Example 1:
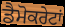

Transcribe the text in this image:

ਡੈਮੋਕਰੇਟਾਂ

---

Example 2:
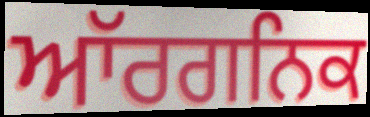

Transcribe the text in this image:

ਆੱਰਗਨਿਕ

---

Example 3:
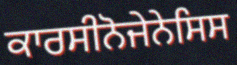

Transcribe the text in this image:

ਕਾਰਸੀਨੋਜੇਨੇਸਿਸ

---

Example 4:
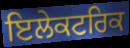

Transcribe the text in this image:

ਇਲੇਕਟਰਿਕ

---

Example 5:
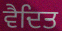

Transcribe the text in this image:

ਵੈਦਿਤ